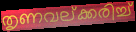
തൃണവല്ക്കരിച്ച്